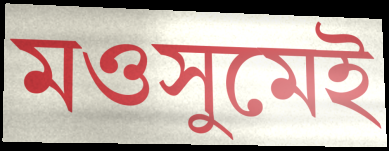
মওসুমেই